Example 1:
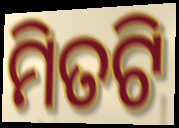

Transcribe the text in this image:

ମିତଟି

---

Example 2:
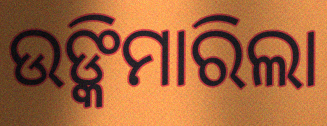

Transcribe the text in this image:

ଉଙ୍କିମାରିଲା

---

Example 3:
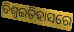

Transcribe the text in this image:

ବିଶ୍ଵଇତିହାସରେ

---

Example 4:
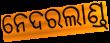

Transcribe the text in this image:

ନେଦରଲାଣ୍ଡ୍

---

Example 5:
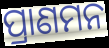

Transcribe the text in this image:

ପ୍ରାଣମନ